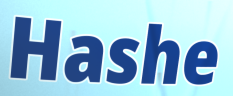
Hashe